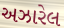
અઝારેલ